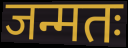
जन्मतः